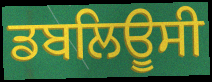
ਡਬਲਿਊਸੀ